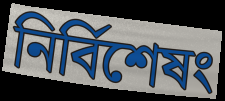
নির্বিশেষং